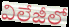
విలేజీలో